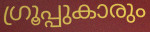
ഗ്രൂപ്പുകാരും